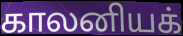
காலனியக்